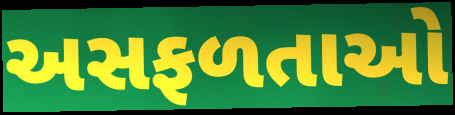
અસફળતાઓ